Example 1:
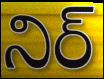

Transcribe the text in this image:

నిర్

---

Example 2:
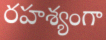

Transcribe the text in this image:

రహశ్యంగా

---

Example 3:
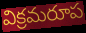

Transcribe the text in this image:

విక్రమరూప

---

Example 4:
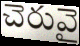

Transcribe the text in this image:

చెరువై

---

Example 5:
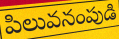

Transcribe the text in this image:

పిలువనంపుడి